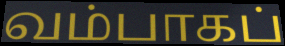
வம்பாகப்